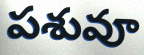
పశువూ